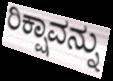
ರಿಕ್ಷಾವನ್ನು